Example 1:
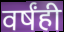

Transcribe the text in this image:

वर्षंही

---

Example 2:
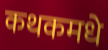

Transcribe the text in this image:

कथकमधे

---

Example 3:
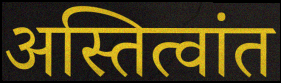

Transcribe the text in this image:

अस्तित्वांत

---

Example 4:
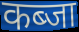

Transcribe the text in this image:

कब्जा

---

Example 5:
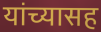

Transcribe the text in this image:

यांच्यासह